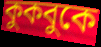
কুকবুকে